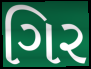
ગિર